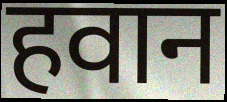
हवान